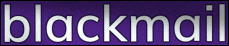
blackmail